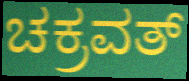
ಚಕ್ರವತ್